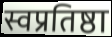
स्वप्रतिष्ठा